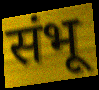
संभू